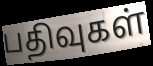
பதிவுகள்